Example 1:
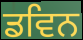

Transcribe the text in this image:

ਡਵਿਨ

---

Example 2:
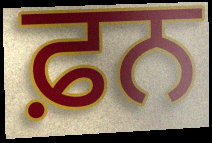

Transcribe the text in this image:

ਫ਼ਨ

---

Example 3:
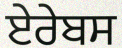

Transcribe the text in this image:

ਏਰੇਬਸ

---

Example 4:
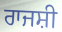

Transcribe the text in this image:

ਰਾਜਸ਼ੀ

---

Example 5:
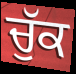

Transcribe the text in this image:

ਚੁੱਕ